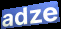
adze